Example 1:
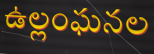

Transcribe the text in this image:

ఉల్లంఘనల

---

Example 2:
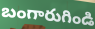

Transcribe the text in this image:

బంగారుగిండి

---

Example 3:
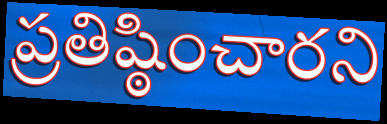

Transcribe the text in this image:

ప్రతిష్ఠించారని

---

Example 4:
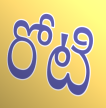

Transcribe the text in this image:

రోటి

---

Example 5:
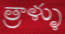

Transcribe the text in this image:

త్రాళ్ళు